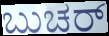
ಬುಚರ್